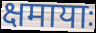
क्षमायाः